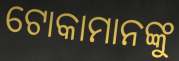
ଟୋକାମାନଙ୍କୁ